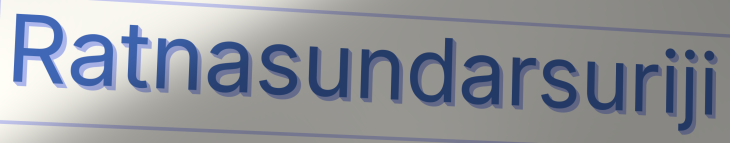
Ratnasundarsuriji